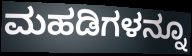
ಮಹಡಿಗಳನ್ನೂ